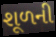
શૂળની